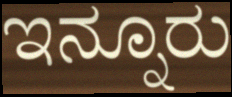
ಇನ್ನೂರು